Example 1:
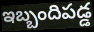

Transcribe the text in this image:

ఇబ్బందిపడ్డ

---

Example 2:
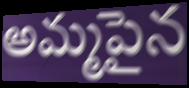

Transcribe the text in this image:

అమ్మపైన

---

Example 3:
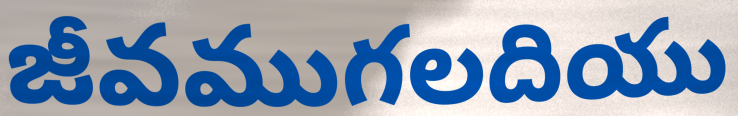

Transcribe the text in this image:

జీవముగలదియు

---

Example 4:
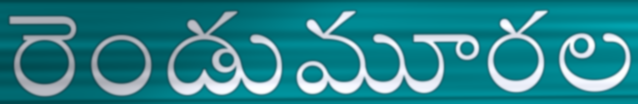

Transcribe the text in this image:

రెండుమూరల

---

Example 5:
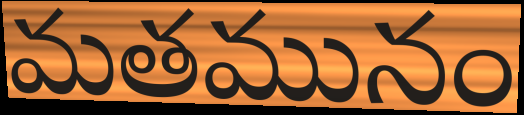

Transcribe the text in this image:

మతమునం